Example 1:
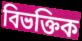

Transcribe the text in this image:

বিভক্তিক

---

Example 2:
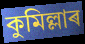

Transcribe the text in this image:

কুমিল্লাৰ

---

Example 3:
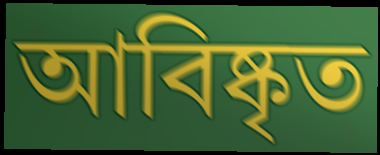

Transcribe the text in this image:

আবিষ্কৃত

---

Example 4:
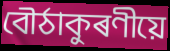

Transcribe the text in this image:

বৌঠাকুৰণীয়ে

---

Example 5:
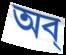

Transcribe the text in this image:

অব্